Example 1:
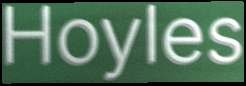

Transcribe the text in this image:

Hoyles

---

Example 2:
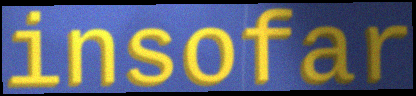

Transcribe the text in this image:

insofar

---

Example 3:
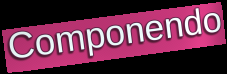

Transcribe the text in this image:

Componendo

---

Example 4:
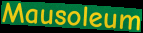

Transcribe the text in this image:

Mausoleum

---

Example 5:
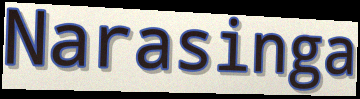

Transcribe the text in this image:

Narasinga